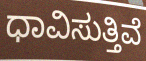
ಧಾವಿಸುತ್ತಿವೆ